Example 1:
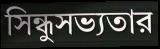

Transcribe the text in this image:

সিন্ধুসভ্যতার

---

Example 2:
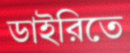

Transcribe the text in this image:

ডাইরিতে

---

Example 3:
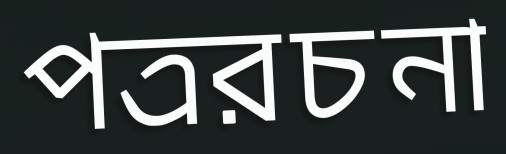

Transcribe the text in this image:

পত্ররচনা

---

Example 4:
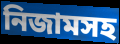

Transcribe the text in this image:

নিজামসহ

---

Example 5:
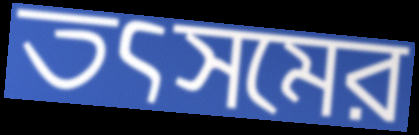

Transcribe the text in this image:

তৎসমের